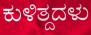
ಕುಳಿತ್ದದಳು